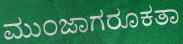
ಮುಂಜಾಗರೂಕತಾ